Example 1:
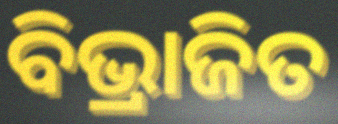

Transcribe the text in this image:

ବିଭ୍ରାଜିତ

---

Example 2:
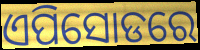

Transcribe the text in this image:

ଏପିସୋଡରେ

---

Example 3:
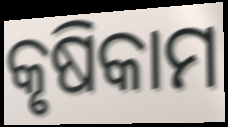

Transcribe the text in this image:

କୃଷିକାମ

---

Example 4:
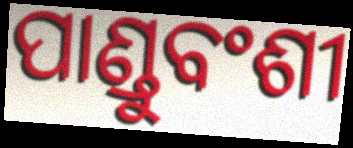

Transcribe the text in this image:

ପାଣ୍ଡୁବଂଶୀ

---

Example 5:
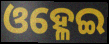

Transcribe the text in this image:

ଓହ୍ଳେଇ